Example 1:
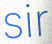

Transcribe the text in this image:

sir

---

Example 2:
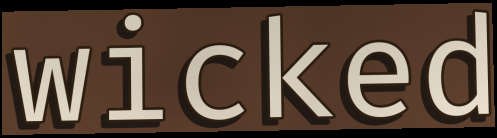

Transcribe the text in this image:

wicked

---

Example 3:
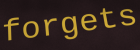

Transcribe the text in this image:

forgets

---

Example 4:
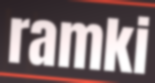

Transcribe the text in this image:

ramki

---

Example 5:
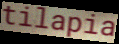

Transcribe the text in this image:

tilapia